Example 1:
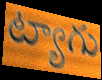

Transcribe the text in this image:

ట్యాగు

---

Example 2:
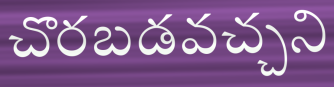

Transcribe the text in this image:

చొరబడవచ్చని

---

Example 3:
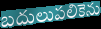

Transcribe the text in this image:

బదులుపలికెను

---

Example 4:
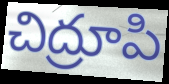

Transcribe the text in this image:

చిద్రూపి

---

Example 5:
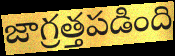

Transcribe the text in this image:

జాగ్రత్తపడింది